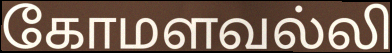
கோமளவல்லி